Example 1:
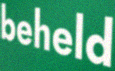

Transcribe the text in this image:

beheld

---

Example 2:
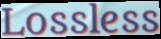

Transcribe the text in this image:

Lossless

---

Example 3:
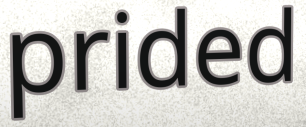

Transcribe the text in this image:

prided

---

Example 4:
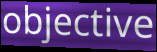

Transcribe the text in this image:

objective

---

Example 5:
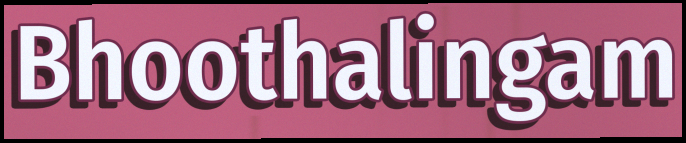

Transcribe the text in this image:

Bhoothalingam